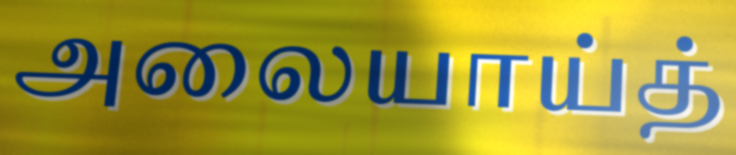
அலையாய்த்